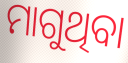
ମାଗୁଥିବା